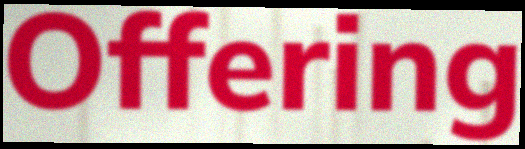
Offering